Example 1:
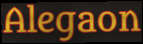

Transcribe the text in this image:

Alegaon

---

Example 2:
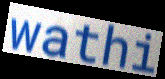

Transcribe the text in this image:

wathi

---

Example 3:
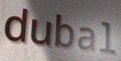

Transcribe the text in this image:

dubal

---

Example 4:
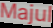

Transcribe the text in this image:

Majul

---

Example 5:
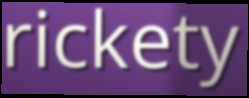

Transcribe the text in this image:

rickety